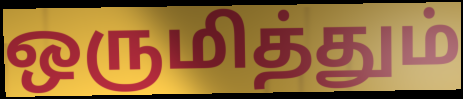
ஒருமித்தும்